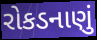
રોકડનાણું